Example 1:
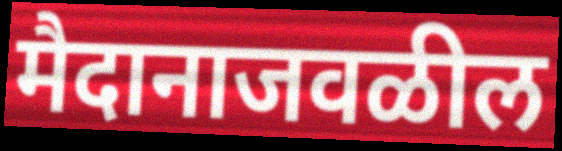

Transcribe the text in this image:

मैदानाजवळील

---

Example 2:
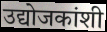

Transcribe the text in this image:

उद्योजकांशी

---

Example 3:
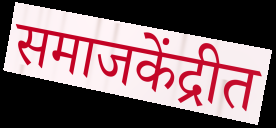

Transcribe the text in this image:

समाजकेंद्रीत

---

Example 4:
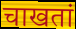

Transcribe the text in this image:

चाखतां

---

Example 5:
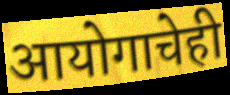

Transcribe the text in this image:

आयोगाचेही